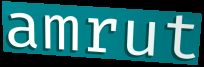
amrut